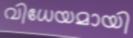
വിധേയമായി